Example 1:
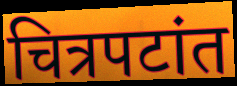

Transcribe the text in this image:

चित्रपटांत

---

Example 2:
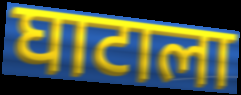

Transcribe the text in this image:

घाटाला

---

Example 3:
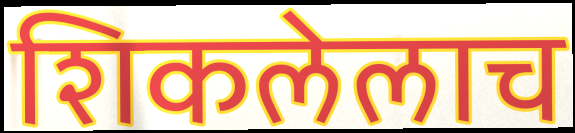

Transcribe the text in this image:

शिकलेलाच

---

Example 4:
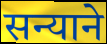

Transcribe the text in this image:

सन्याने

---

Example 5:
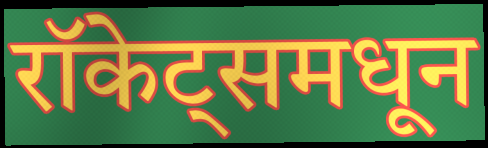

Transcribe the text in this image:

रॉकेट्समधून